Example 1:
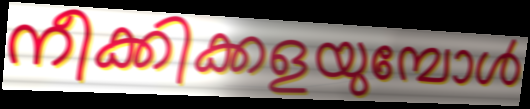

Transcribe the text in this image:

നീക്കിക്കളയുമ്പോൾ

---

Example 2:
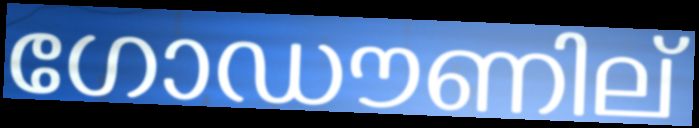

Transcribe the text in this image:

ഗോഡൗണില്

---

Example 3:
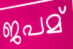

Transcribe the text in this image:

ജപമ്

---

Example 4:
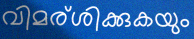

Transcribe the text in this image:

വിമര്ശിക്കുകയും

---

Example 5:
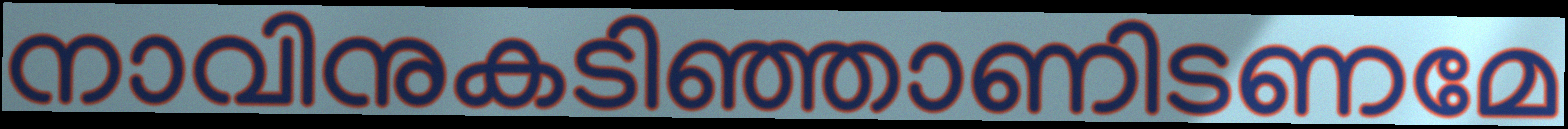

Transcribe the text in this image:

നാവിനുകടിഞ്ഞാണിടണമേ